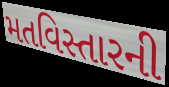
મતવિસ્તારની